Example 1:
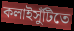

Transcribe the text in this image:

কলাইসুঁটিতে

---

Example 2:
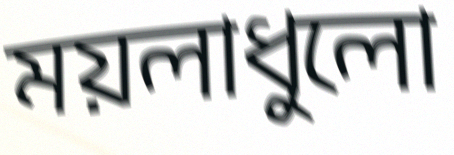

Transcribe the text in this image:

ময়লাধুলো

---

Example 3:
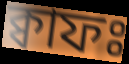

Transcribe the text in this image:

ক্বাফঃ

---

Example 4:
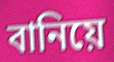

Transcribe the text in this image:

বানিয়ে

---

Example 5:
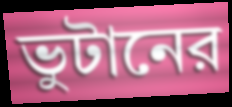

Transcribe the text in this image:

ভুটানের